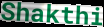
Shakthi